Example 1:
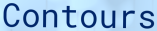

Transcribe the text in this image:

Contours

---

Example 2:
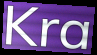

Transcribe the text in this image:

Kra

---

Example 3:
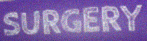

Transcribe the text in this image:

SURGERY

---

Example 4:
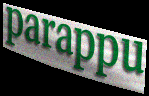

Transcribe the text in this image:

parappu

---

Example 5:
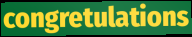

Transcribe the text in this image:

congretulations